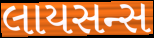
લાયસન્સ